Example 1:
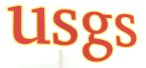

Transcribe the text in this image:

usgs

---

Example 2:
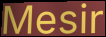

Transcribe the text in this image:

Mesir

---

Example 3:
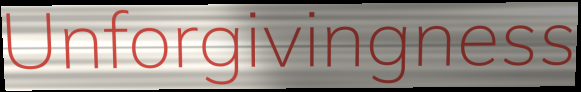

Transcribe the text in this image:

Unforgivingness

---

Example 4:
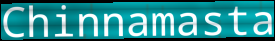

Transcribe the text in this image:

Chinnamasta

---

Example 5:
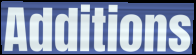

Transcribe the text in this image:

Additions